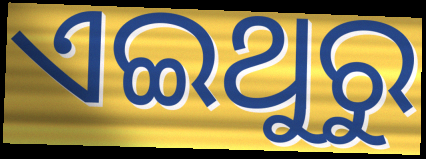
ଏଇଥୁରୁ